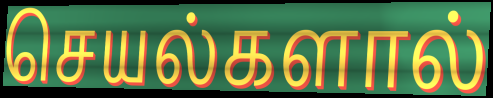
செயல்களால்